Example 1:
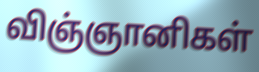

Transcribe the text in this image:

விஞ்ஞானிகள்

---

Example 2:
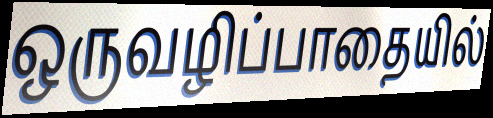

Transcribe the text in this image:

ஒருவழிப்பாதையில்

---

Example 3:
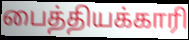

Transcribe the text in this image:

பைத்தியக்காரி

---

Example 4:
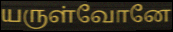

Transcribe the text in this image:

யருள்வோனே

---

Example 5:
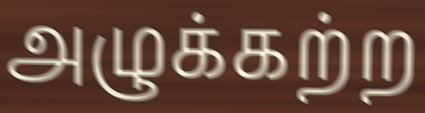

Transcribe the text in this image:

அழுக்கற்ற